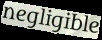
negligible